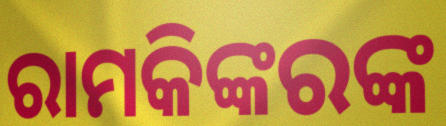
ରାମକିଙ୍କରଙ୍କ